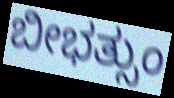
ಬೀಭತ್ಸುಂ